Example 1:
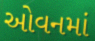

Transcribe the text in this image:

ઓવનમાં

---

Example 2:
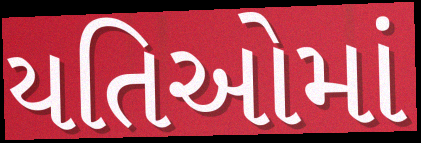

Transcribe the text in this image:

યતિઓમાં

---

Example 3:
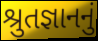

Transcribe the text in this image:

શ્રુતજ્ઞાનનું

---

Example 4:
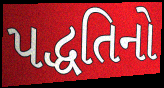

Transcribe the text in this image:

પદ્ધતિનો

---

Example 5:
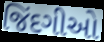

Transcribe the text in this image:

જિંદગીઓ